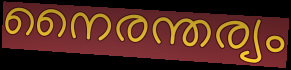
നൈരന്തര്യം